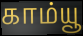
காம்யூ